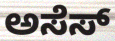
ಅಸೆಸ್